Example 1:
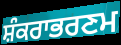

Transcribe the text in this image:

ਸ਼ੰਕਰਾਭਰਣਮ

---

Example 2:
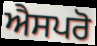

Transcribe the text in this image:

ਐਸਪਰੋ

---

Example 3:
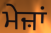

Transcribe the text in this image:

ਮੇਜ਼ਾਂ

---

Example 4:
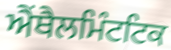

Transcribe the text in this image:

ਐਂਥੈਲਮਿੰਟਟਿਕ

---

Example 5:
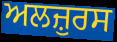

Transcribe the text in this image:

ਅਲਜ਼ੁਰਸ